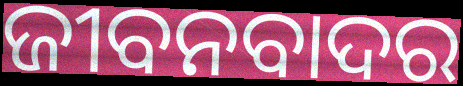
ଜୀବନବାଦର